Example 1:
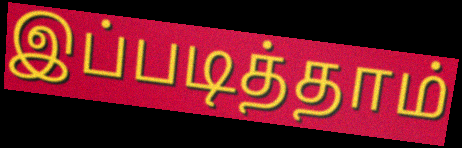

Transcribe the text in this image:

இப்படித்தாம்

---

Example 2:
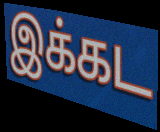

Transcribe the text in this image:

இக்கட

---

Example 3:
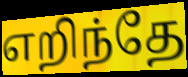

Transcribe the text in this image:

எறிந்தே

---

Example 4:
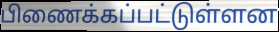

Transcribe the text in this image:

பிணைக்கப்பட்டுள்ளன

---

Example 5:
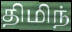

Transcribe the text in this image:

திமிந்